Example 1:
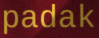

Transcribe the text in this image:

padak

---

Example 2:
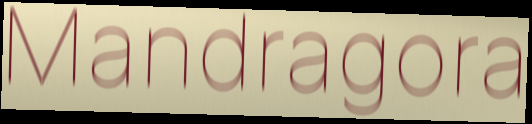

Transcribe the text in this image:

Mandragora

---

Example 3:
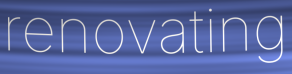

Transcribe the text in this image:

renovating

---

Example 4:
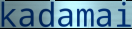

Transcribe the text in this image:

kadamai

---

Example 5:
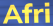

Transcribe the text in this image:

Afri